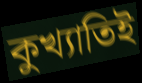
কুখ্যাতিই